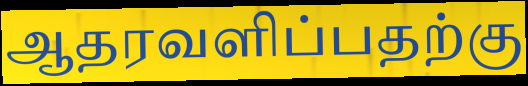
ஆதரவளிப்பதற்கு